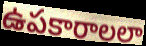
ఉపకారాలలా